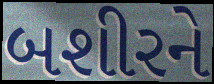
બશીરને